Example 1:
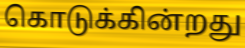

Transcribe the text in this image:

கொடுக்கின்றது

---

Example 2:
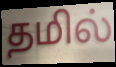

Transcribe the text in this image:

தமில்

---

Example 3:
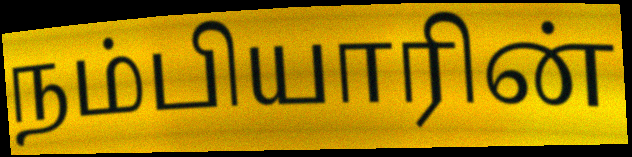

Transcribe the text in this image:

நம்பியாரின்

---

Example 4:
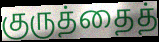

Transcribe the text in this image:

குருத்தைத்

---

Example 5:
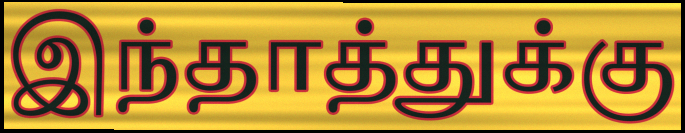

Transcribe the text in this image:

இந்தாத்துக்கு